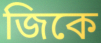
জিকে